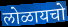
लोळायचो